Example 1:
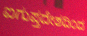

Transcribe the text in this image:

ಐಗುಪ್ತದೇಶದಿಂದ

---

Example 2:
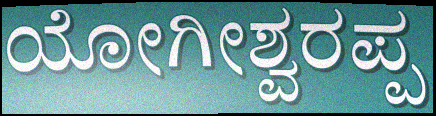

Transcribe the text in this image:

ಯೋಗೀಶ್ವರಪ್ಪ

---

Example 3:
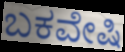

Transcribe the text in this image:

ಬಕವೇಷಿ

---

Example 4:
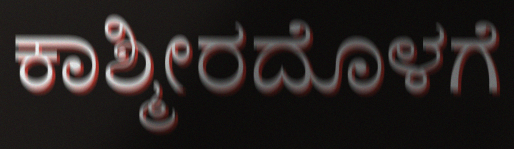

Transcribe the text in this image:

ಕಾಶ್ಮೀರದೊಳಗೆ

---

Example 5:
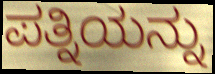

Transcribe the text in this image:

ಪತ್ನಿಯನ್ನು